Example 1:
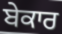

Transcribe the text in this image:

ਬੇਕਾਰ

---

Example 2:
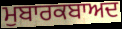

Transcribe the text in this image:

ਮੁਬਾਰਕਬਾਅਦ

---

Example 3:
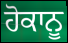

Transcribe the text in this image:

ਹੋਕਾਨੂ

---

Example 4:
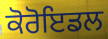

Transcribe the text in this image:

ਕੋਰੋਇਡਲ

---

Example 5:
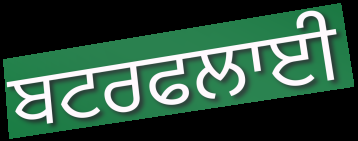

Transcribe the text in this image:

ਬਟਰਫਲਾਈ